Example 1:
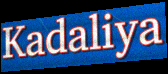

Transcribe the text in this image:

Kadaliya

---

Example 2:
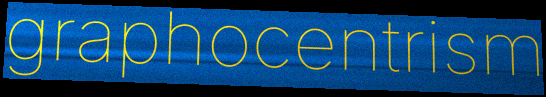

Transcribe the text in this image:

graphocentrism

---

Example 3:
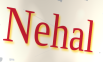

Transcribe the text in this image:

Nehal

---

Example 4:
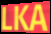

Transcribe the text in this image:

LKA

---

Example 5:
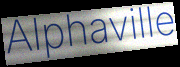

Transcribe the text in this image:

Alphaville